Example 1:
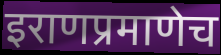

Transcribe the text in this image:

इराणप्रमाणेच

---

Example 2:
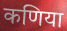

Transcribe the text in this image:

कणिया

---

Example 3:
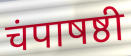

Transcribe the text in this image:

चंपाषष्ठी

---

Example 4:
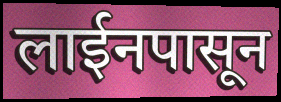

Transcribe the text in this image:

लाईनपासून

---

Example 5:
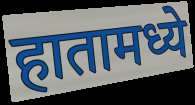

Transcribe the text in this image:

हातामध्ये